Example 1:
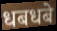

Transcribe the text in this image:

धबधबे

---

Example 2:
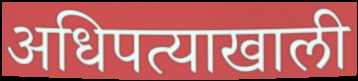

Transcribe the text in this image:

अधिपत्याखाली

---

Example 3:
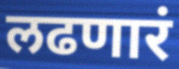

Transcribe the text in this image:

लढणारं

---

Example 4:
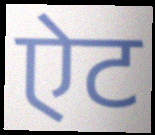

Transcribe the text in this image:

ऐट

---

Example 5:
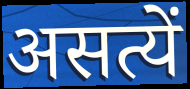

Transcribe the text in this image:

असत्यें